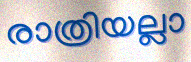
രാത്രിയല്ലാ